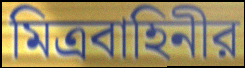
মিত্রবাহিনীর